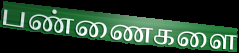
பண்ணைகளை